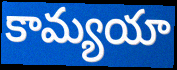
కామ్యయా